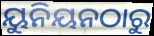
ୟୁନିୟନଠାରୁ